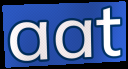
aat